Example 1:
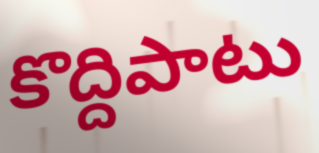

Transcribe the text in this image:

కొద్దిపాటు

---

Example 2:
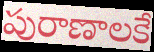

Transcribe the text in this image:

పురాణాలకే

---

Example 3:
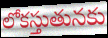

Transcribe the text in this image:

లోకస్తుతునకు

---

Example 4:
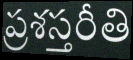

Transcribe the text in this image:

ప్రశస్తరీతి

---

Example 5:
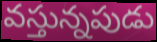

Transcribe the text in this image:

వస్తున్నపుడు